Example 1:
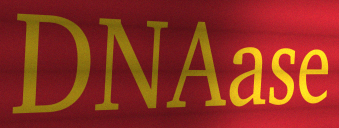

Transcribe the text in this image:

DNAase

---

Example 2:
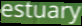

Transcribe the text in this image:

estuary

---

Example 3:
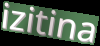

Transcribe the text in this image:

izitina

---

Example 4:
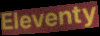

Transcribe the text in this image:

Eleventy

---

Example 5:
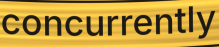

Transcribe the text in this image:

concurrently